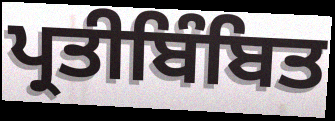
ਪ੍ਰਤੀਬਿੰਬਿਤ